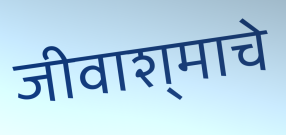
जीवाश्माचे